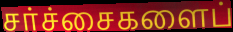
சர்ச்சைகளைப்